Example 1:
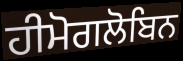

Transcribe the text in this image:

ਹੀਮੋਗਲੋਬਿਨ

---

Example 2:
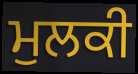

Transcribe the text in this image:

ਮੁਲਕੀ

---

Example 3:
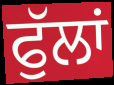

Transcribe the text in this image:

ਫੁੱਲਾਂ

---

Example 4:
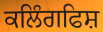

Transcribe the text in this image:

ਕਲਿੰਗਫਿਸ਼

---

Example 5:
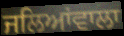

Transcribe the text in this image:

ਜਲਿਆਂਵਾਲਾ